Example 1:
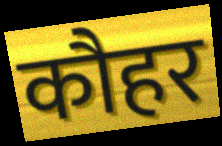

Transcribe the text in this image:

कौहर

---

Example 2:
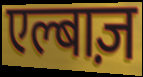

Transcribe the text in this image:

एल्बाज़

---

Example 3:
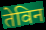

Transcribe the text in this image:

तेविन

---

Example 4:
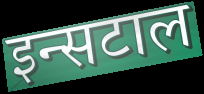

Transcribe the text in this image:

इन्सटाल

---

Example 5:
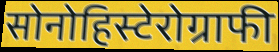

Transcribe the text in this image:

सोनोहिस्टेरोग्राफी